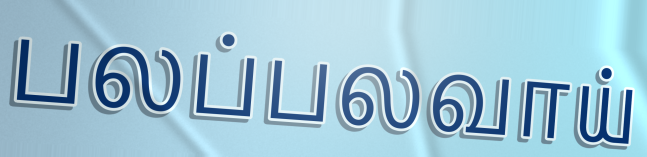
பலப்பலவாய்